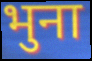
भुना